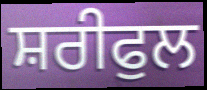
ਸ਼ਰੀਫੁਲ